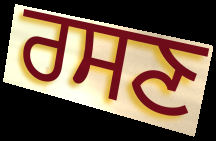
ਰਸਣ